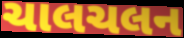
ચાલચલન